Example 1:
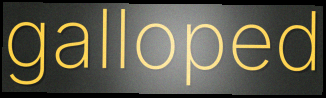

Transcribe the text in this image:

galloped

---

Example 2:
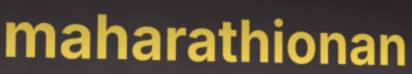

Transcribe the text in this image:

maharathionan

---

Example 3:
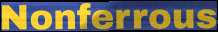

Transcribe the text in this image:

Nonferrous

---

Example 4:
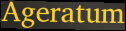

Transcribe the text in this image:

Ageratum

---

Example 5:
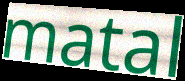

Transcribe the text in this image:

matal